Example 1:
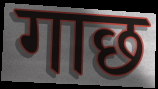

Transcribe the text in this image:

गाछ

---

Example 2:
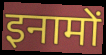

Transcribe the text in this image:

इनामों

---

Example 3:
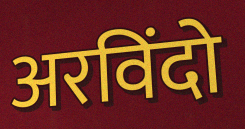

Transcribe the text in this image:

अरविंदो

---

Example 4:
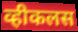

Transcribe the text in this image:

व्हीकलस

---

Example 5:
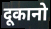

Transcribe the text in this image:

दूकानो